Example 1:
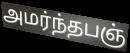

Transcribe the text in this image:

அமர்ந்தபஞ்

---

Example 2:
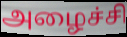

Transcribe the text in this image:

அழைச்சி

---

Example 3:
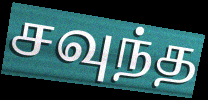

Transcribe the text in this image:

சவுந்த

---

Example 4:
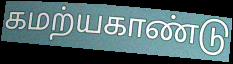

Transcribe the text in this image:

கமற்யகாண்டு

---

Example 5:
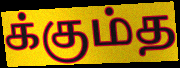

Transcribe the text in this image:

க்கும்த